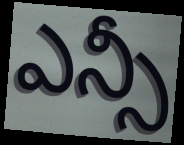
ఎన్సీ